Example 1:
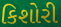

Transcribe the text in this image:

કિશોરી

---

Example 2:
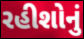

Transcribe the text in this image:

રહીશોનું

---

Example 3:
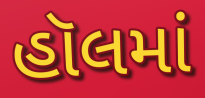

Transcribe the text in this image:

હૉલમાં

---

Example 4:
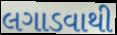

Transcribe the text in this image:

લગાડવાથી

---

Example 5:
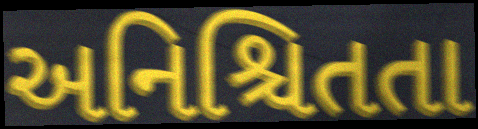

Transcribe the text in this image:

અનિશ્ચિતતા